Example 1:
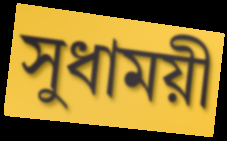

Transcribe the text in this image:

সুধাময়ী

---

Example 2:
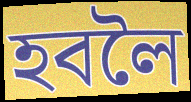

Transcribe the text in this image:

হবলৈ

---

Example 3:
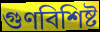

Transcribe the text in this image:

গুণবিশিষ্ট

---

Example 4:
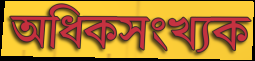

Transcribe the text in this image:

অধিকসংখ্যক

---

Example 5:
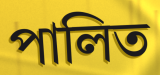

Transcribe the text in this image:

পালিত